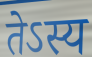
तेऽस्य